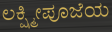
ಲಕ್ಷ್ಮೀಪೂಜೆಯ